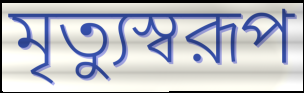
মৃত্যুস্বরূপ